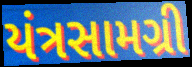
યંત્રસામગ્રી